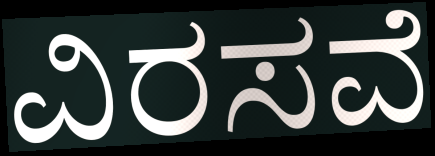
ವಿರಸವೆ